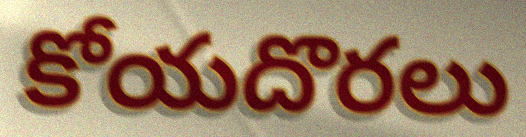
కోయదొరలు